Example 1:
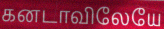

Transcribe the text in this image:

கனடாவிலேயே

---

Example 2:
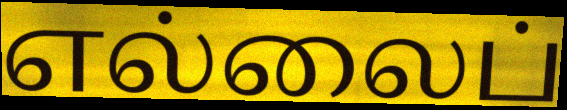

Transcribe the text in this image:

எல்லைப்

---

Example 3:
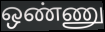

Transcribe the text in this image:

ஒண்ணு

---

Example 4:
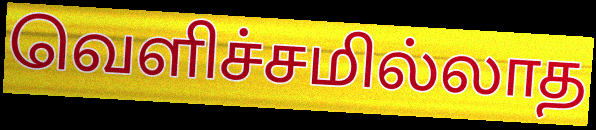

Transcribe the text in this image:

வெளிச்சமில்லாத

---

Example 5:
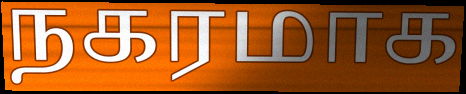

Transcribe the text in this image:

நகரமாக